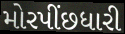
મોરપીંછધારી